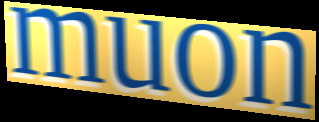
muon